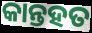
କାନ୍ତହତ